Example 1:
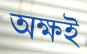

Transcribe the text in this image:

অক্ষই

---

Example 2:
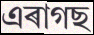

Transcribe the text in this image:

এৰাগছ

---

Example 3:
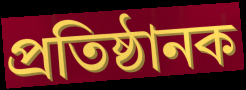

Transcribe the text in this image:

প্ৰতিষ্ঠানক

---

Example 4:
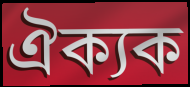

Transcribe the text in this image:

ঐক্যক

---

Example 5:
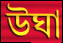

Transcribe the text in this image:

উঘা